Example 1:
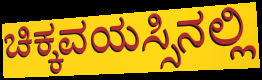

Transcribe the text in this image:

ಚಿಕ್ಕವಯಸ್ಸಿನಲ್ಲಿ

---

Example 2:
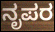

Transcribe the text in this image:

ನೃಪರ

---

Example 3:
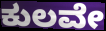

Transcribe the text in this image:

ಕುಲವೇ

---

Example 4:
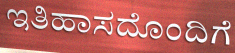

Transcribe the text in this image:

ಇತಿಹಾಸದೊಂದಿಗೆ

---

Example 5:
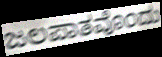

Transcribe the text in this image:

ಜಲಪಾತವೊಂದು